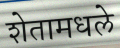
शेतामधले